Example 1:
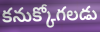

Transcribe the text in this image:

కనుక్కోగలడు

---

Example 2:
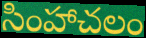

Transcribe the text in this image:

సింహాచలం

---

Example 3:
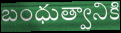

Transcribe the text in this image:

బంధుత్వానికి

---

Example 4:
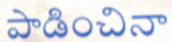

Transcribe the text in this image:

పాడించినా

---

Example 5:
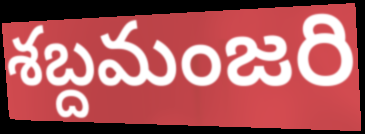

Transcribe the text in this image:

శబ్దమంజరి